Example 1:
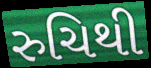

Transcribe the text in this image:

રુચિથી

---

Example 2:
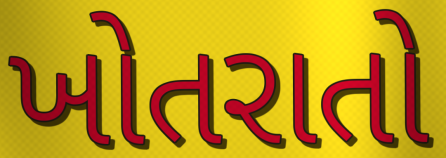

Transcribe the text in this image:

ખોતરાતો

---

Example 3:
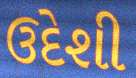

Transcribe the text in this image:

ઉદેશી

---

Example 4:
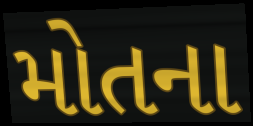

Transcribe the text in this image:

મોતના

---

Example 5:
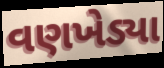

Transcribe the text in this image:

વણખેડ્યા